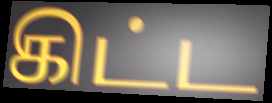
கிட்ட